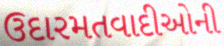
ઉદારમતવાદીઓની